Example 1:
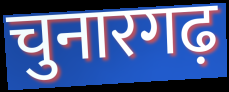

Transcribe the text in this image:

चुनारगढ़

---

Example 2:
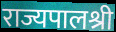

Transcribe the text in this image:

राज्यपालश्री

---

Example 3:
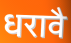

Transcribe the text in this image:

धरावै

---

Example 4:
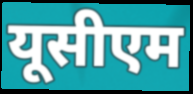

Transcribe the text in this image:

यूसीएम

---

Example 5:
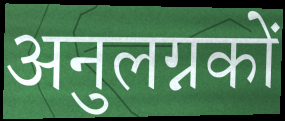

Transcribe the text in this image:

अनुलग्नकों